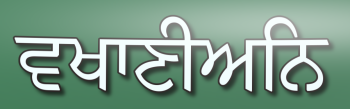
ਵਖਾਣੀਅਨਿ